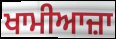
ਖਾਮੀਆਜ਼ਾ